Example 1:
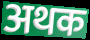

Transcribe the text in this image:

अथक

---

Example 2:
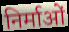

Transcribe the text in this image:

निर्माओं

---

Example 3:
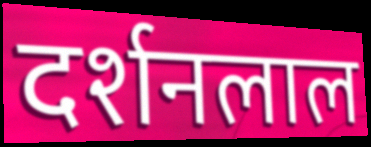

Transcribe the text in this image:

दर्शनलाल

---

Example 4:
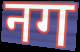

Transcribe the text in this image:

नग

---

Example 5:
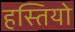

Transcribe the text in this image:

हस्तियो